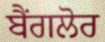
ਬੈਂਗਲੋਰ